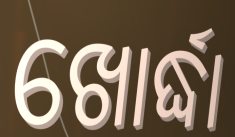
ଖୋର୍ଦ୍ଧା